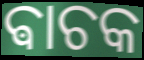
ଵାଚକ